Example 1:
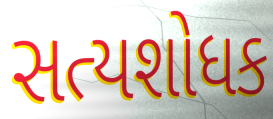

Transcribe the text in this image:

સત્યશોધક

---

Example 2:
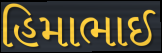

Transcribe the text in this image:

હિમાભાઈ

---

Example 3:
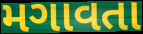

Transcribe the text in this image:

મગાવતા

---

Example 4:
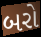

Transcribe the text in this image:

બરો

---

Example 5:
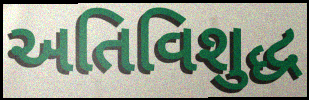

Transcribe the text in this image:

અતિવિશુદ્ધ